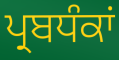
ਪ੍ਰਬਧੰਕਾਂ